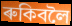
ৰুকিবলৈ